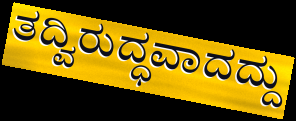
ತದ್ವಿರುದ್ಧವಾದದ್ದು